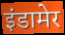
इंडामेर